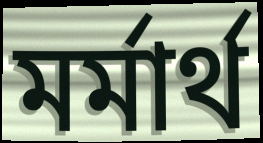
মর্মার্থ